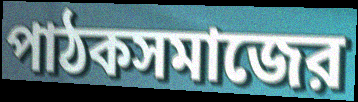
পাঠকসমাজের